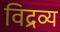
विद्रव्य